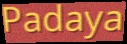
Padaya